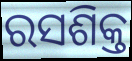
ରସଶିକ୍ତ